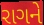
રાગને